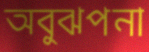
অবুঝপনা